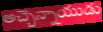
అచ్చెన్నాయుడు